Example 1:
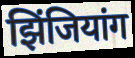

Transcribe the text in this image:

झिंजियांग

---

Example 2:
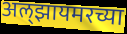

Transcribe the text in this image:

अल्झायमरच्या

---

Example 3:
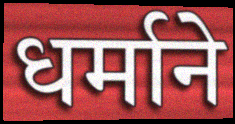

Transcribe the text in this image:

धर्माने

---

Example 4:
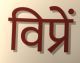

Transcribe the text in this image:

विप्रें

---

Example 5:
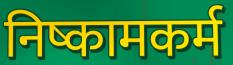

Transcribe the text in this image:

निष्कामकर्म